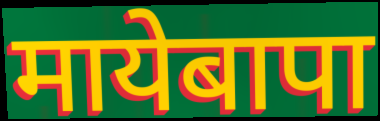
मायेबापा